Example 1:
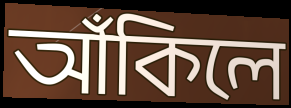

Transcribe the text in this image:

আঁকিলে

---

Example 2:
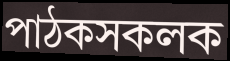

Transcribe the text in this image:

পাঠকসকলক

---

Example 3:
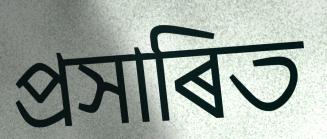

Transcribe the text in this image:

প্ৰসাৰিত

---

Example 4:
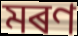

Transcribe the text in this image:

মৰণ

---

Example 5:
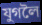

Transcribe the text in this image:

যুগলৈ